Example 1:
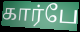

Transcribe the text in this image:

கார்பே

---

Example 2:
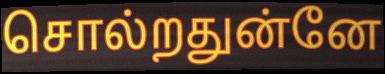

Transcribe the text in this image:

சொல்றதுன்னே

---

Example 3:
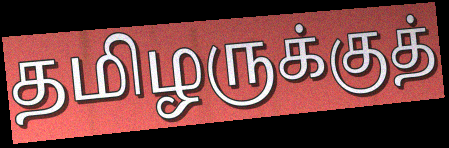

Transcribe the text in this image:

தமிழருக்குத்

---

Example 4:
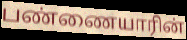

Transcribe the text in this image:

பண்ணையாரின்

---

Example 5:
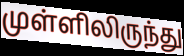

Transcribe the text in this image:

முள்ளிலிருந்து